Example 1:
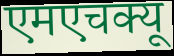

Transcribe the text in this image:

एमएचक्यू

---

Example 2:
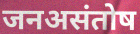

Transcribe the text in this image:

जनअसंतोष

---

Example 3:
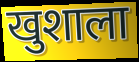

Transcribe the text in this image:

खुशाला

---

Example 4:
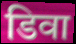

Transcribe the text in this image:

डिवा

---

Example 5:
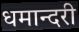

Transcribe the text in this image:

धमान्दरी